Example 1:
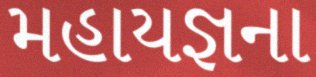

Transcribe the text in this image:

મહાયજ્ઞના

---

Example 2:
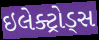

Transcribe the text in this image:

ઇલેક્ટ્રોડ્સ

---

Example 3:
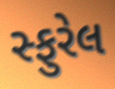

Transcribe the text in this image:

સ્ફુરેલ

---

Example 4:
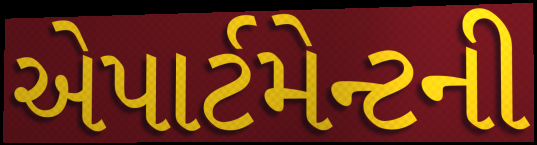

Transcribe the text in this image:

એપાર્ટમેન્ટની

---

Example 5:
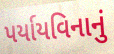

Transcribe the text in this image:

પર્યાયવિનાનું